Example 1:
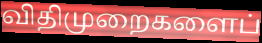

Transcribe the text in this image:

விதிமுறைகளைப்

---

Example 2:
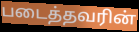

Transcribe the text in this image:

படைத்தவரின்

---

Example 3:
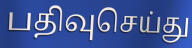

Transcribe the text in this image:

பதிவுசெய்து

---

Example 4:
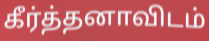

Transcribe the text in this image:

கீர்த்தனாவிடம்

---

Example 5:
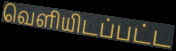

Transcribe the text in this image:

வெளியிடப்பட்ட